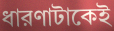
ধারণাটাকেই